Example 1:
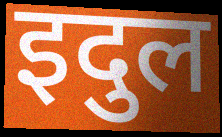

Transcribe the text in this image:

इदुल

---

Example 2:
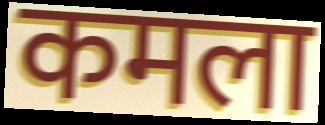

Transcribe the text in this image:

कमला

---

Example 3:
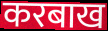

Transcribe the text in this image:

करबाख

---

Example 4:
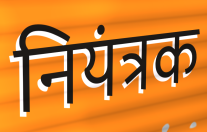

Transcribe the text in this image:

नियंत्रक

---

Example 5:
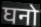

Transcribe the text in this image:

घनो